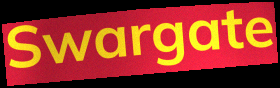
Swargate